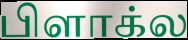
பிளாக்ல